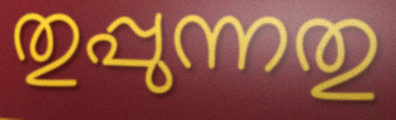
തുപ്പുന്നതു